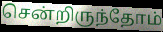
சென்றிருந்தோம்